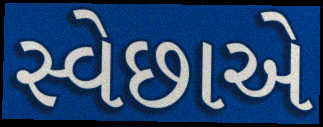
સ્વેછાએ